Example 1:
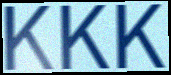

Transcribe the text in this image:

KKK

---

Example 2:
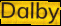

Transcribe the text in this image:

Dalby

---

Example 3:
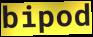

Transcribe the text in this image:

bipod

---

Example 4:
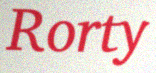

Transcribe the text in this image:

Rorty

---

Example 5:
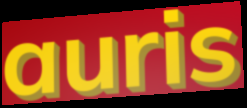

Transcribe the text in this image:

auris